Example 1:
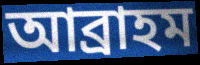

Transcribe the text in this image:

আব্ৰাহম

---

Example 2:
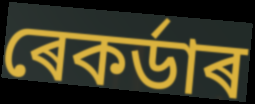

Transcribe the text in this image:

ৰেকৰ্ডাৰ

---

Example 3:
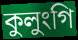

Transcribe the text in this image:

কুলুংগি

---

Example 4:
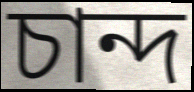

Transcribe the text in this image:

চান্দ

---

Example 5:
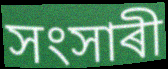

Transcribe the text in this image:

সংসাৰী